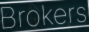
Brokers